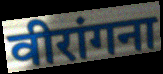
वीरांगना